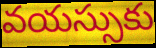
వయస్సుకు